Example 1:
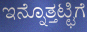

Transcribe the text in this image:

ಇನ್ನೊತ್ತಟ್ಟಿಗೆ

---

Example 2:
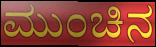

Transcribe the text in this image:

ಮುಂಚಿನ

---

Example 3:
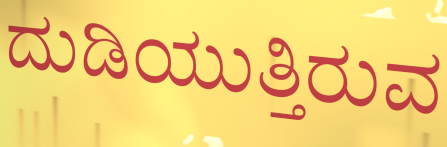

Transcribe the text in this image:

ದುಡಿಯುತ್ತಿರುವ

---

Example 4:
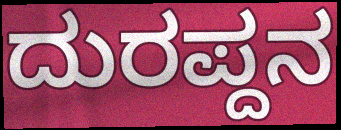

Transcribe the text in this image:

ದುರಪ್ದನ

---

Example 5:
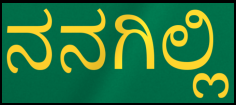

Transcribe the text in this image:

ನನಗಿಲ್ಲಿ